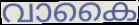
വാകൈ